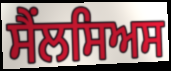
ਸੈਂਲਸਿਅਸ